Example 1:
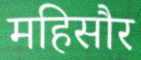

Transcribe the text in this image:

महिसौर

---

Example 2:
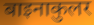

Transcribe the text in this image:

बाइनाकुलर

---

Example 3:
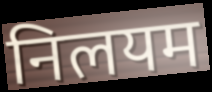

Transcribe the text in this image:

निलयम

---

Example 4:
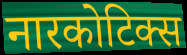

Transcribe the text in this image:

नारकोटिक्स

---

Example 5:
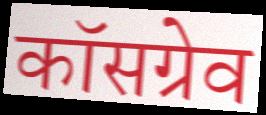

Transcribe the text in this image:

कॉसग्रेव